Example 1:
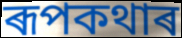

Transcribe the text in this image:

ৰূপকথাৰ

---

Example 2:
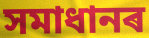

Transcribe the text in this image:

সমাধানৰ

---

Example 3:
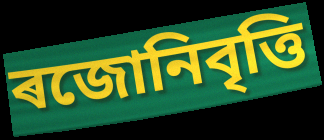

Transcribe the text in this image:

ৰজোনিবৃত্তি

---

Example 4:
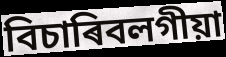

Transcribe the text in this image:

বিচাৰিবলগীয়া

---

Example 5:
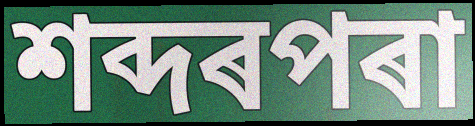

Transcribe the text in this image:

শব্দৰপৰা